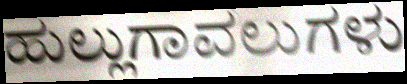
ಹುಲ್ಲುಗಾವಲುಗಳು